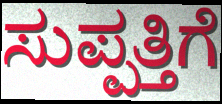
ಸುಪ್ಪತ್ತಿಗೆ